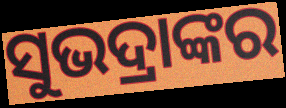
ସୁଭଦ୍ରାଙ୍କର